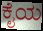
ಕೈಯ